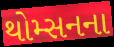
થોમ્સનના